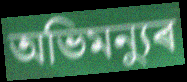
অভিমন্যুৰ